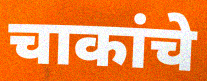
चाकांचे